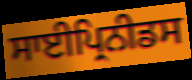
ਸਾਈਪ੍ਰਿਨੀਡਸ